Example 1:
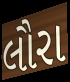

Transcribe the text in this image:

લૌરા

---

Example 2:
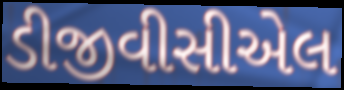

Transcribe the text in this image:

ડીજીવીસીએલ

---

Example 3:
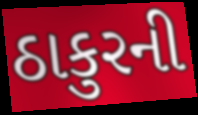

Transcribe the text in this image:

ઠાકુરની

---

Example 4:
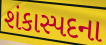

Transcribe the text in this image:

શંકાસ્પદના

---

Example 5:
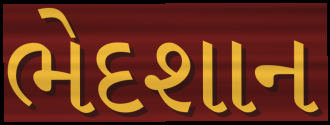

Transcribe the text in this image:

ભેદશાન